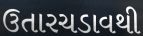
ઉતારચડાવથી